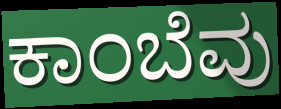
ಕಾಂಬೆವು